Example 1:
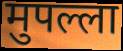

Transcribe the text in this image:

मुपल्ला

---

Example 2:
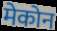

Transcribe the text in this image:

मेकोन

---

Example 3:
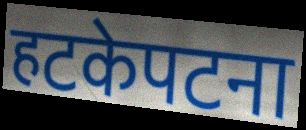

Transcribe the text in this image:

हटकेपटना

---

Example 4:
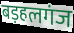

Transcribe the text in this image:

बड़हलगंज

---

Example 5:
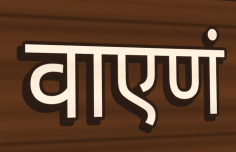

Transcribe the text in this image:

वाएणं